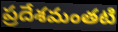
ప్రదేశమంతటి